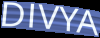
DIVYA